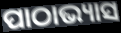
ପାଠାଭ୍ୟାସ